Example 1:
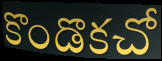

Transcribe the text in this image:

కొండొకచో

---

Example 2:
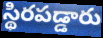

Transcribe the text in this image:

స్థిరపడ్డారు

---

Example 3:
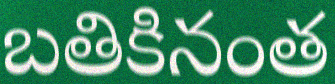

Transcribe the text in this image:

బతికినంత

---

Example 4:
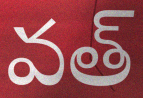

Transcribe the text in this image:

వత్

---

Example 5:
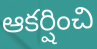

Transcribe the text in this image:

ఆకర్షించి